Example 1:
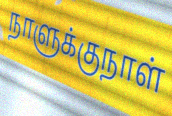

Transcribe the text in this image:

நாளுக்குநாள்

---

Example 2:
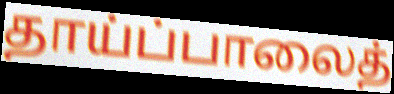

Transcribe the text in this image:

தாய்ப்பாலைத்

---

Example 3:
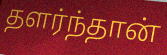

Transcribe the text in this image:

தளர்ந்தான்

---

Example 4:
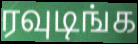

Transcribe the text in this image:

ரவுடிங்க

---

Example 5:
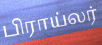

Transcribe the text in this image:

பிராய்லர்